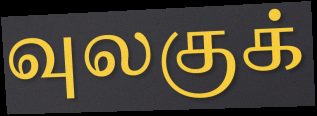
வுலகுக்